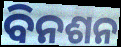
ବିନଶନ